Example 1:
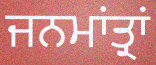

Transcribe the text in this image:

ਜਨਮਾਂਤ੍ਰਾਂ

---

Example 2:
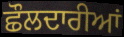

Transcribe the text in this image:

ਛੌਲਦਾਰੀਆਂ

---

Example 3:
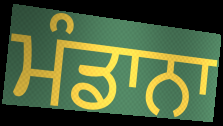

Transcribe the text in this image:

ਮੰਡਾਨਾ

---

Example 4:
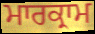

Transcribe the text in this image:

ਮਾਰਕ੍ਰਾਮ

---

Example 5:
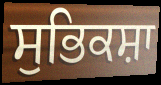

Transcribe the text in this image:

ਸੁਭਿਕਸ਼ਾ